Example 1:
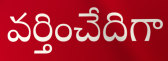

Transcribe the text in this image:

వర్తించేదిగా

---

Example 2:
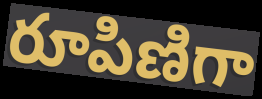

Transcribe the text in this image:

రూపిణిగా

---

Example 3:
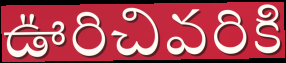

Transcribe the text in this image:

ఊరిచివరికి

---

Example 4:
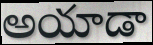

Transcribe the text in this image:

అయాడా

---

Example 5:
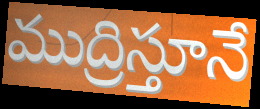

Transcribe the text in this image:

ముద్రిస్తూనే